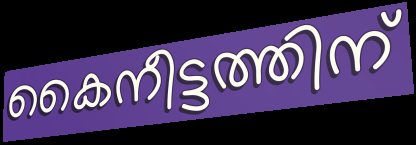
കൈനീട്ടത്തിന്